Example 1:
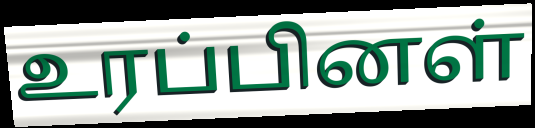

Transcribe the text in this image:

உரப்பினள்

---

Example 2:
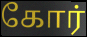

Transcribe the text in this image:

கோர்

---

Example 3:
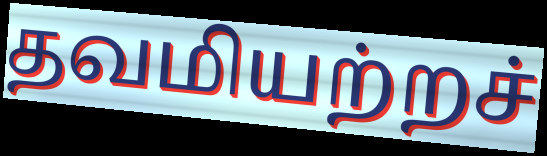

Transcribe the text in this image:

தவமியற்றச்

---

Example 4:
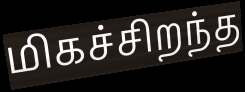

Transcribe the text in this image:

மிகச்சிறந்த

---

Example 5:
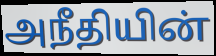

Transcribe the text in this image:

அநீதியின்